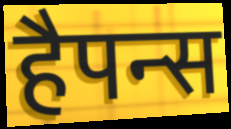
हैपन्स